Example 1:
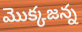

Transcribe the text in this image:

మొక్కజన్న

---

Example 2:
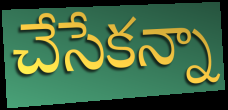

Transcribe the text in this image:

చేసేకన్నా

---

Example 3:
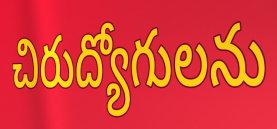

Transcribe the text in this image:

చిరుద్యోగులను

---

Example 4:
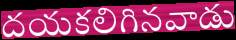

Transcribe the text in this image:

దయకలిగినవాడు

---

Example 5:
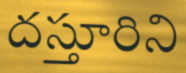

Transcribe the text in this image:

దస్తూరిని